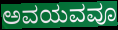
ಅವಯವವೂ